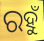
ରହୁଁ